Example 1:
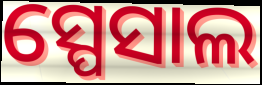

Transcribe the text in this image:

ସ୍ପେସାଲ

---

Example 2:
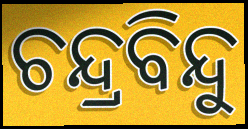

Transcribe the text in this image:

ଚନ୍ଦ୍ରବିନ୍ଦୁ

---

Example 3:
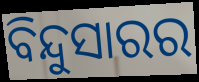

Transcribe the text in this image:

ବିନ୍ଦୁସାରର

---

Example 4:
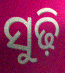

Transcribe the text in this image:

ସୁଢ଼ି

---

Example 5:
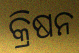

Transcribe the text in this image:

କ୍ରିଷନ